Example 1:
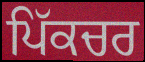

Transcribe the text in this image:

ਪਿੱਕਚਰ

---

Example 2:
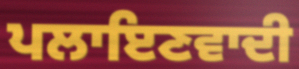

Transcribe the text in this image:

ਪਲਾਇਣਵਾਦੀ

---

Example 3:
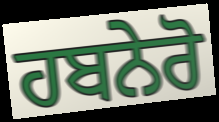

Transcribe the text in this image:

ਹਬਨੇਰੋ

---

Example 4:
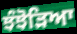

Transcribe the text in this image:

ਝੰਝੋੜਿਆ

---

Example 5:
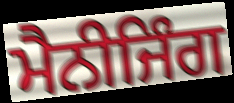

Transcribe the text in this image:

ਮੈਨੀਜਿੰਗ